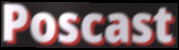
Poscast